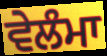
ਵੇਲੰਮਾ